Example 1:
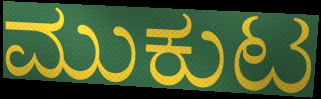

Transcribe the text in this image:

ಮುಕುಟ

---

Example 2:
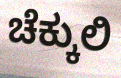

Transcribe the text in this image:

ಚೆಕ್ಕುಲಿ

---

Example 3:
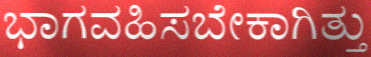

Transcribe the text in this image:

ಭಾಗವಹಿಸಬೇಕಾಗಿತ್ತು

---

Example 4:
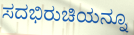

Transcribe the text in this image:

ಸದಭಿರುಚಿಯನ್ನೂ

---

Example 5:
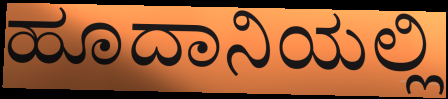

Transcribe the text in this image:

ಹೂದಾನಿಯಲ್ಲಿ